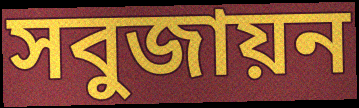
সবুজায়ন